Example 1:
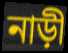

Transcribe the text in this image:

নাড়ী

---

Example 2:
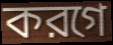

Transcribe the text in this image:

করগে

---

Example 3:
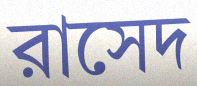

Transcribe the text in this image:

রাসেদ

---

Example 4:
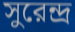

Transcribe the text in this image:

সুরেন্দ্র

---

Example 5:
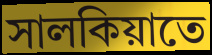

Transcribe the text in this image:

সালকিয়াতে